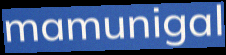
mamunigal